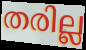
തരില്ല